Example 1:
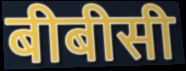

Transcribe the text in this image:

बीबीसी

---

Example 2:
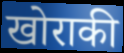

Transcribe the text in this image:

खोराकी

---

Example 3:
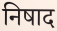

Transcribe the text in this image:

निषाद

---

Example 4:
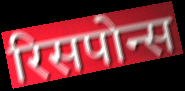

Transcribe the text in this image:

रिसपोन्स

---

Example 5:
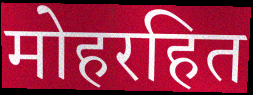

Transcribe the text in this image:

मोहरहित